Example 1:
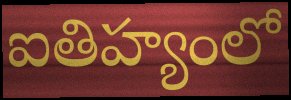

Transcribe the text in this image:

ఐతిహ్యంలో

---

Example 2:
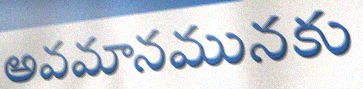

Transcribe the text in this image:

అవమానమునకు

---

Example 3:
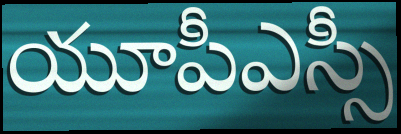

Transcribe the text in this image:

యూపీఎస్సీ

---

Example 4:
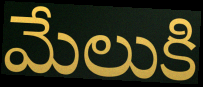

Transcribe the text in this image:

మేలుకి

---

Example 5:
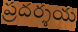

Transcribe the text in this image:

ప్రదర్శయ